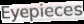
Eyepieces